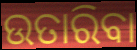
ଉତାରିବା